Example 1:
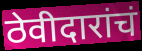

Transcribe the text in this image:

ठेवीदारांचं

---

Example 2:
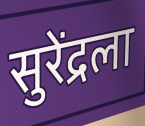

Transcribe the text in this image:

सुरेंद्रला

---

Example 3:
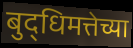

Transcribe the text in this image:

बुद्धिमत्तेच्या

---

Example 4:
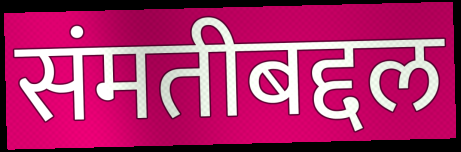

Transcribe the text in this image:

संमतीबद्दल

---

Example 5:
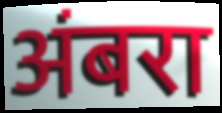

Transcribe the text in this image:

अंबरा